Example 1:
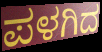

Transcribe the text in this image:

ಪಳಗಿದ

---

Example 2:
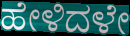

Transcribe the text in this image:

ಹೇಳಿದಳೇ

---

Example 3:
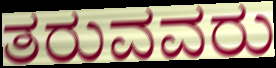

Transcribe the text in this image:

ತರುವವರು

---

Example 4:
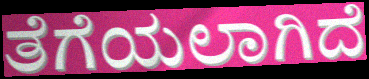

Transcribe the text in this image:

ತೆಗೆಯಲಾಗಿದೆ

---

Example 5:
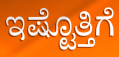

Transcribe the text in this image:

ಇಷ್ಟೊತ್ತಿಗೆ